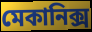
মেকানিক্স